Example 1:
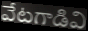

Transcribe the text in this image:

వేటగాడివి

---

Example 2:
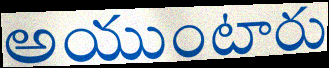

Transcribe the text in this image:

అయుంటారు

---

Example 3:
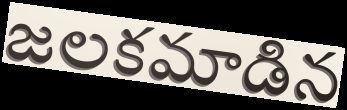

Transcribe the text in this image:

జలకమాడిన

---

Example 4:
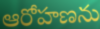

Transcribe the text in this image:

ఆరోహణను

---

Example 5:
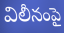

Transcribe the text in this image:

విలీనంపై